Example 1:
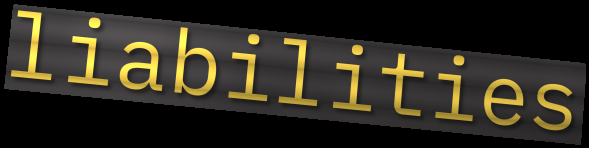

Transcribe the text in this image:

liabilities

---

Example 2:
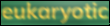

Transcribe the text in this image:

eukaryotic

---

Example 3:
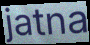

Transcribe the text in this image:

jatna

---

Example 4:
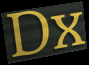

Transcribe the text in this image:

Dx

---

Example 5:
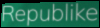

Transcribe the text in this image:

Republike